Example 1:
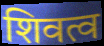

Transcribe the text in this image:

शिवत्व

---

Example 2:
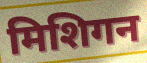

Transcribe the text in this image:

मिशिगन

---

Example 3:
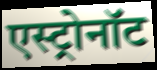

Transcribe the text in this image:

एस्‍ट्रोनॉट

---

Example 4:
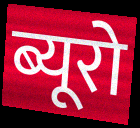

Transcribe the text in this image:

ब्यूरो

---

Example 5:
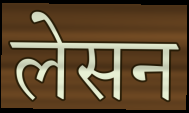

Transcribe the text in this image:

लेसन